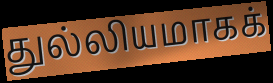
துல்லியமாகக்